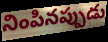
నింపినప్పుడు